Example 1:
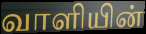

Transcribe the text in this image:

வாளியின்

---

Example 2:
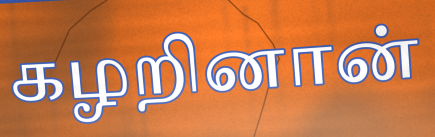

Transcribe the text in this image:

கழறினான்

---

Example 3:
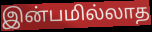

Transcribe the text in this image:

இன்பமில்லாத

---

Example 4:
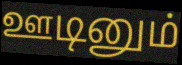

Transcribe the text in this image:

ஊடினும்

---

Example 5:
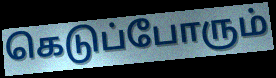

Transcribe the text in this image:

கெடுப்போரும்